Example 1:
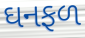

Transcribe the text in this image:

ઘનફળ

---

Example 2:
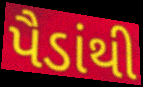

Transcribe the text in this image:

પૈડાંથી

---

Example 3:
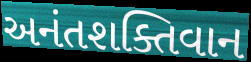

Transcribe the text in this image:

અનંતશક્તિવાન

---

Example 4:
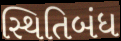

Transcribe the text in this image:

સ્થિતિબંધ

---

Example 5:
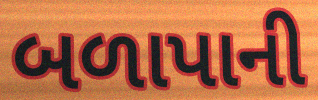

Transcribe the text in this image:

બળાપાની